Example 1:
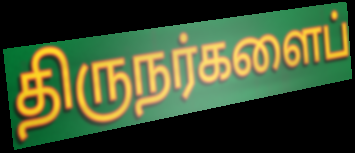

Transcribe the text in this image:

திருநர்களைப்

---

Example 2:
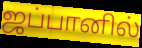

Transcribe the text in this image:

ஜப்பானில்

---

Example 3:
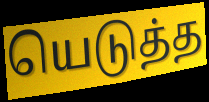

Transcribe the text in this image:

யெடுத்த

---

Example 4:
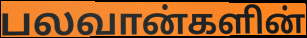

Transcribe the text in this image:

பலவான்களின்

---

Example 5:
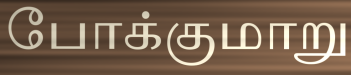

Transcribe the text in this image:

போக்குமாறு